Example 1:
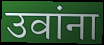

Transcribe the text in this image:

उवांना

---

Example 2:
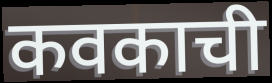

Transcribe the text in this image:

कवकाची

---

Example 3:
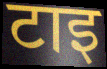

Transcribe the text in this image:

टाइ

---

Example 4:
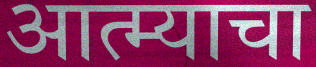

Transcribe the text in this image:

आत्म्याचा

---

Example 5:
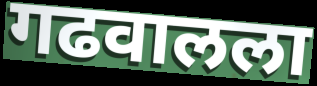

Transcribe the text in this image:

गढवालला